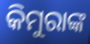
କିମୁରାଙ୍କ